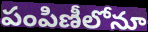
పంపిణీలోనూ